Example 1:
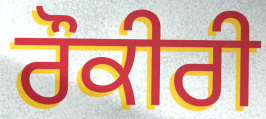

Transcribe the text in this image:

ਰੌਕੀਰੀ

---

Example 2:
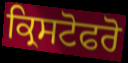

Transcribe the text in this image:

ਕ੍ਰਿਸਟੋਫਰੋ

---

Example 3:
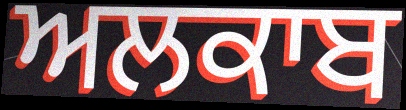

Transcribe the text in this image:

ਅਲਕਾਬ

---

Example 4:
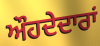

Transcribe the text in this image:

ਔਹਦੇਦਾਰਾਂ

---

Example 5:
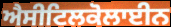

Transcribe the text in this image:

ਐਸੀਟਿਲਕੋਲਾਈਨ